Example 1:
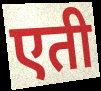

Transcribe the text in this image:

एती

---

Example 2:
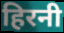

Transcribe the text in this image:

हिरनी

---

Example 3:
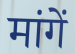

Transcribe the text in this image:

मांगें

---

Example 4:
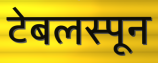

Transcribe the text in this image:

टेबलस्पून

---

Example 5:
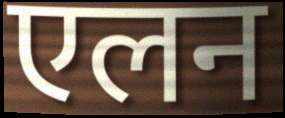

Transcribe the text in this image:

एलन